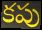
కపు